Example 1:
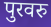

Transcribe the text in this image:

पुरवरु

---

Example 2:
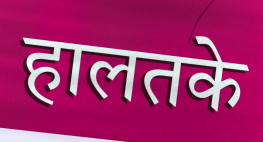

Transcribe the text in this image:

हालतके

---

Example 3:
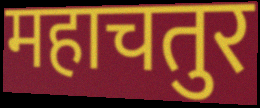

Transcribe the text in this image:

महाचतुर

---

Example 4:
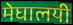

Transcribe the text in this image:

मेघालयी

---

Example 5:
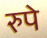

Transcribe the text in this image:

रुपे